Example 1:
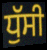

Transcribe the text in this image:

ਧੁੱਸੀ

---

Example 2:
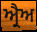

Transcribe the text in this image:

ਅ੍ਰੈਅ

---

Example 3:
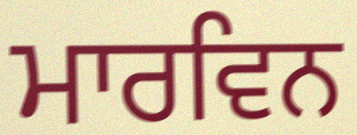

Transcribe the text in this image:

ਮਾਰਵਿਨ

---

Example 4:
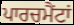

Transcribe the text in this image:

ਪਾਰਚਮੈਂਟਾਂ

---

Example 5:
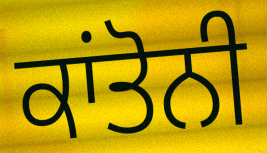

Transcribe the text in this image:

ਕਾਂਤੋਨੀ